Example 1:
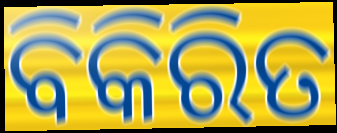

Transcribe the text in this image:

ବିକିରିତ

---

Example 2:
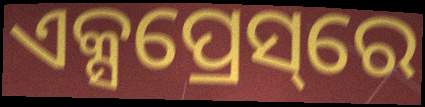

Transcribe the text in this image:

ଏକ୍ସପ୍ରେସ୍‌ରେ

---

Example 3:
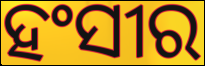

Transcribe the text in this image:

ହଂସୀର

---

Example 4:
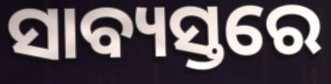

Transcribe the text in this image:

ସାବ୍ୟସ୍ତରେ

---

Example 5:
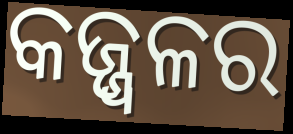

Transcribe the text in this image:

କଜ୍ଜ୍ୱଳର